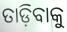
ତାଡ଼ିବାକୁ